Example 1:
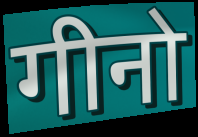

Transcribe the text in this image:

गीनो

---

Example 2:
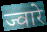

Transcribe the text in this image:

ज्वारे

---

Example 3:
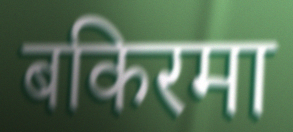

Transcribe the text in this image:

बकिरमा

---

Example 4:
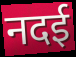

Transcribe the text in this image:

नदई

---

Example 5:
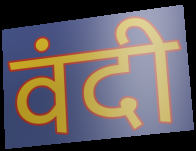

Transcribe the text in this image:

वंदी